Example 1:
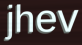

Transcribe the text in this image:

jhev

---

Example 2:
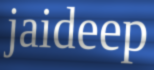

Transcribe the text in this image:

jaideep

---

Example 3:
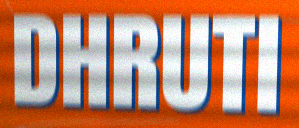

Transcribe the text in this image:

DHRUTI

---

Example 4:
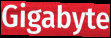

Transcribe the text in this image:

Gigabyte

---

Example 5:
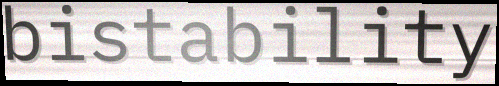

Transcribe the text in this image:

bistability